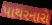
પાથરનારો